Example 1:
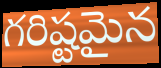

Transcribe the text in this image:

గరిష్టమైన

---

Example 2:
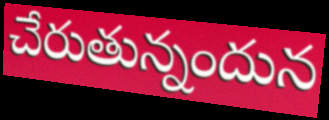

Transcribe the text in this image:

చేరుతున్నందున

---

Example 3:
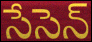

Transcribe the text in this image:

సేసెన్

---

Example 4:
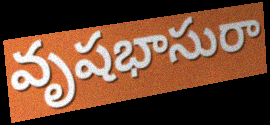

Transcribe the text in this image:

వృషభాసురా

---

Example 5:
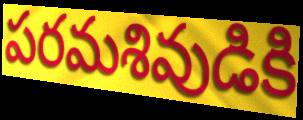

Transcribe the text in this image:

పరమశివుడికి